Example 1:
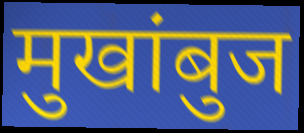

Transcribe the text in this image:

मुखांबुज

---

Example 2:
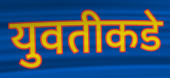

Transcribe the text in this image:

युवतीकडे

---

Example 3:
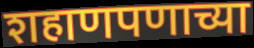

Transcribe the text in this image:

शहाणपणाच्या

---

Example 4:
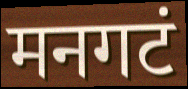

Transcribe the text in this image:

मनगटं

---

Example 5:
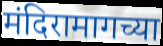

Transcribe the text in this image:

मंदिरामागच्या